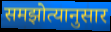
समझोत्यानुसार